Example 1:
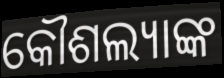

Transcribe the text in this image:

କୌଶଲ୍ୟାଙ୍କ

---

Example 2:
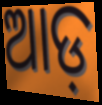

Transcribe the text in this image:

ଆଡ଼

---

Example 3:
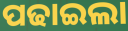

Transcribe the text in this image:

ପଢାଇଲା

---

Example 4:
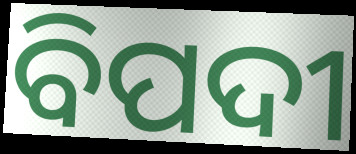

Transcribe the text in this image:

ବିପଦୀ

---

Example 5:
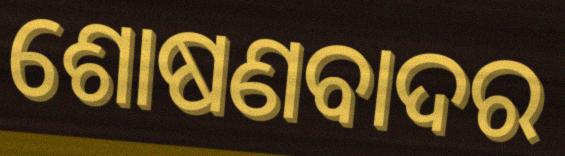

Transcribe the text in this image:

ଶୋଷଣବାଦର